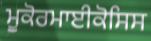
ਮੂਕੋਰਮਾਈਕੋਸਿਸ